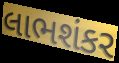
લાભશંકર